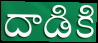
దాడికి